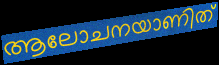
ആലോചനയാണിത്